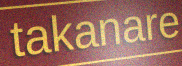
takanare